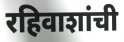
रहिवाशांची